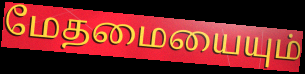
மேதமையையும்